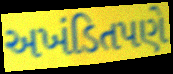
અખંડિતપણે